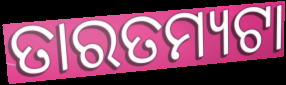
ତାରତମ୍ୟଟା